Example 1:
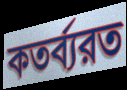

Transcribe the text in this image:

কতর্ব্যরত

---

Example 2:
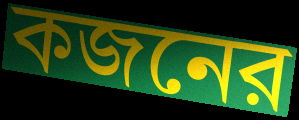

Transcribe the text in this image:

কজনের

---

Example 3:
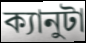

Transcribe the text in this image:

ক্যানুটা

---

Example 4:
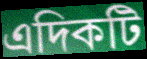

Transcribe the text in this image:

এদিকটি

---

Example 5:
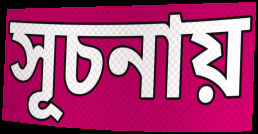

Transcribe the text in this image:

সূচনায়